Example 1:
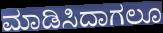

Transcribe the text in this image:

ಮಾಡಿಸಿದಾಗಲೂ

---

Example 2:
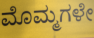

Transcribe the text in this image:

ಮೊಮ್ಮಗಳೇ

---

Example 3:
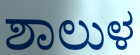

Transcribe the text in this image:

ಶಾಲುಳ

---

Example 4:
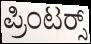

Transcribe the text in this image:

ಪ್ರಿಂಟರ‍್ಸ್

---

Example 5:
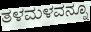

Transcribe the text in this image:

ತಳಮಳವನ್ನೂ